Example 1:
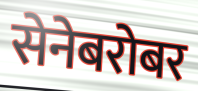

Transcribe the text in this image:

सेनेबरोबर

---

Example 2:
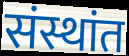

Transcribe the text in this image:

संस्थांत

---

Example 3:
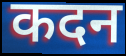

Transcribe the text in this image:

कदन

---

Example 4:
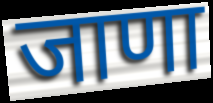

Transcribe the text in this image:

जाणा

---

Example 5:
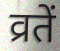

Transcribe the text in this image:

व्रतें